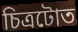
চিত্ৰটোত